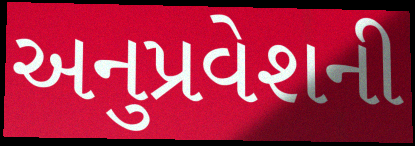
અનુપ્રવેશની